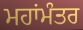
ਮਹਾਂਮੰਤਰ